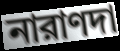
নারাণদা